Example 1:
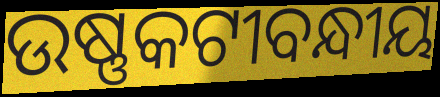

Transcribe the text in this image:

ଉଷ୍ଣକଟୀବନ୍ଧୀୟ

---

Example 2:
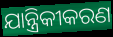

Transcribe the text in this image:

ଯାନ୍ତ୍ରିକୀକରଣ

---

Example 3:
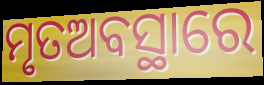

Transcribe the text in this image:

ମୃତଅବସ୍ଥାରେ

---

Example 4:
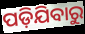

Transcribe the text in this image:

ପଡ଼ିଯିବାରୁ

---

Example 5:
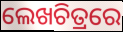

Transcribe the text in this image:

ଲେଖଚିତ୍ରରେ